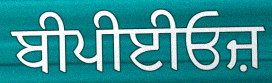
ਬੀਪੀਈਓਜ਼